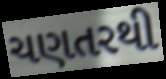
ચણતરથી